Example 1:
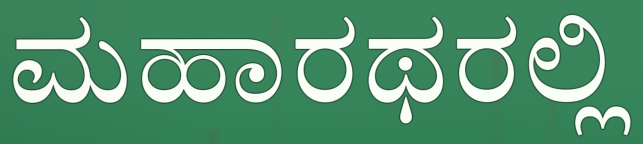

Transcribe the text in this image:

ಮಹಾರಥರಲ್ಲಿ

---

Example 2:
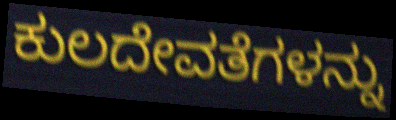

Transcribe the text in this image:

ಕುಲದೇವತೆಗಳನ್ನು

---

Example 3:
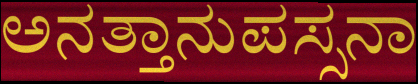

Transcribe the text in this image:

ಅನತ್ತಾನುಪಸ್ಸನಾ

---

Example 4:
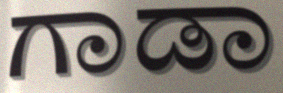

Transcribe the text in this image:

ಗಾಡಾ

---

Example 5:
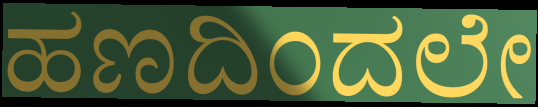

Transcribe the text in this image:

ಹಣದಿಂದಲೇ